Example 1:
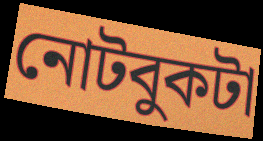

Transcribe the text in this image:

নোটবুকটা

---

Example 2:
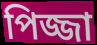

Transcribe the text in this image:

পিজ্জা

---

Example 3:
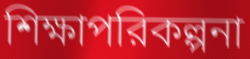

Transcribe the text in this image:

শিক্ষাপরিকল্পনা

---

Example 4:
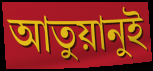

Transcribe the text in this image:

আতুয়ানুই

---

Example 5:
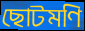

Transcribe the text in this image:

ছোটমণি